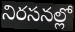
నిరసనల్లో